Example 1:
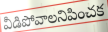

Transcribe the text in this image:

వీడిపోవాలనిపించక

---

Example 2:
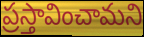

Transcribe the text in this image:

ప్రస్తావించామని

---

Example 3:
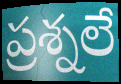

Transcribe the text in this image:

ప్రశ్నలే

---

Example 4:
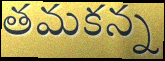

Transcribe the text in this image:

తమకన్న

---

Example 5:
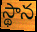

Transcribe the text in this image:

స్థాన